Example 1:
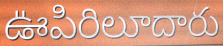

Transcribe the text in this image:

ఊపిరిలూదారు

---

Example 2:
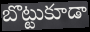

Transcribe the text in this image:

బొట్టుకూడా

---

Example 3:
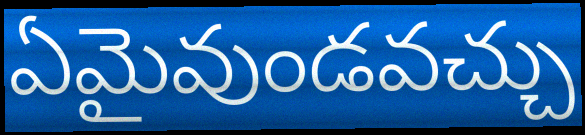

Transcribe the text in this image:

ఏమైవుండవచ్చు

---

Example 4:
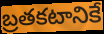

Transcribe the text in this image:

బ్రతకటానికే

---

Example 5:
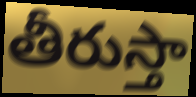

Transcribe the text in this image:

తీరుస్తా